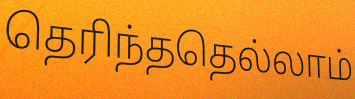
தெரிந்ததெல்லாம்